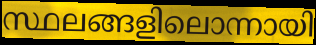
സ്ഥലങ്ങളിലൊന്നായി